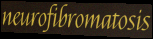
neurofibromatosis